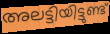
അലട്ടിയിട്ടുണ്ട്